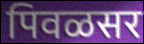
पिवळसर